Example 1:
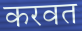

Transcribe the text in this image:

करवत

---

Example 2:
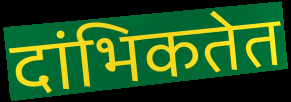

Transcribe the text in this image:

दांभिकतेत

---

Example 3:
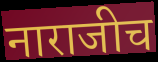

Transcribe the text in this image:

नाराजीच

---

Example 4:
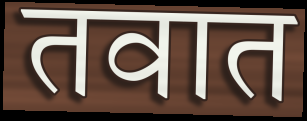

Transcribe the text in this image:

तवात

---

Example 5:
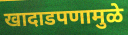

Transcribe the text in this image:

खादाडपणामुळे